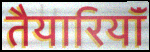
तैयारियॉं